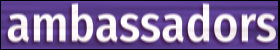
ambassadors